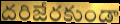
దరిజేరకుండా